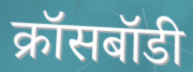
क्रॉसबॉडी